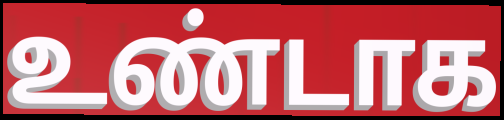
உண்டாக